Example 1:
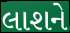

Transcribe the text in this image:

લાશને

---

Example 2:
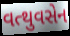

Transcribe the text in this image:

વત્થુવસેન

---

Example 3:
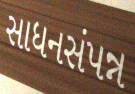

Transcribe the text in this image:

સાધનસંપન્ન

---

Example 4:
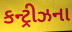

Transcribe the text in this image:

કન્ટ્રીઝના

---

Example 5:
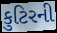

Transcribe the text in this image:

કુટિરની